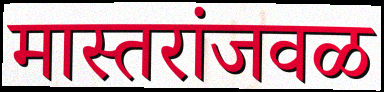
मास्तरांजवळ